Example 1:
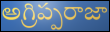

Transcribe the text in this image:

అగ్రిప్పరాజా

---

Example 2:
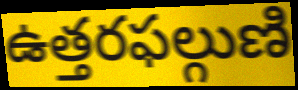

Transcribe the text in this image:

ఉత్తరఫల్గుణి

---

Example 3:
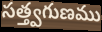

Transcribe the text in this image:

సత్త్వగుణము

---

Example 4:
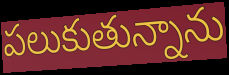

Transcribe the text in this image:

పలుకుతున్నాను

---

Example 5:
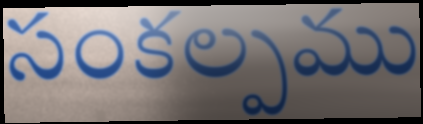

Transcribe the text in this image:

సంకల్పము